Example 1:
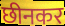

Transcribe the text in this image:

छीनकर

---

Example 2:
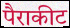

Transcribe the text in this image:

पैराकीट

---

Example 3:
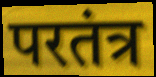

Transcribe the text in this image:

परतंत्र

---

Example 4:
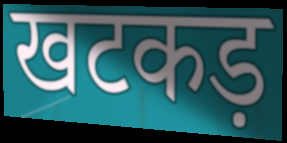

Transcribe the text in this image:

खटकड़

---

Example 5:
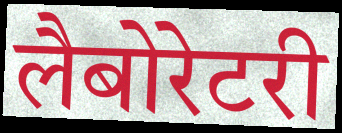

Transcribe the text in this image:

लैबोरेटरी